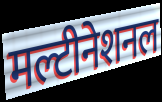
मल्टीनेशनल